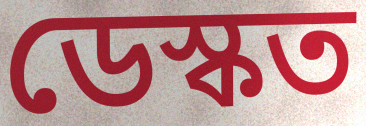
ডেস্কত